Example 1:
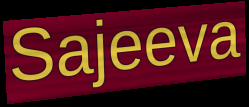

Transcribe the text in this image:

Sajeeva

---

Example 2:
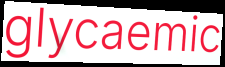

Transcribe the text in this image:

glycaemic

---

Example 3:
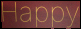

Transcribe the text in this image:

Happy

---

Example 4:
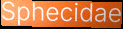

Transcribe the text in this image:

Sphecidae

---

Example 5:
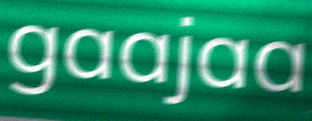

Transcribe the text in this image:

gaajaa